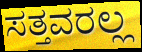
ಸತ್ತವರಲ್ಲ